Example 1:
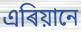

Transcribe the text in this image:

এৰিয়ানে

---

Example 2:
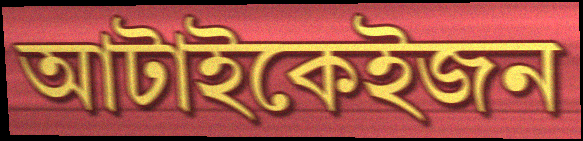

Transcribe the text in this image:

আটাইকেইজন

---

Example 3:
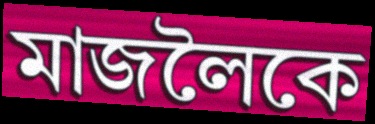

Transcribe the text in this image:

মাজলৈকে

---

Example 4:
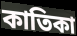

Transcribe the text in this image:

কাতিকা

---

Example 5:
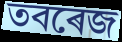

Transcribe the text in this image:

তবৰেজ